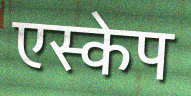
एस्केप